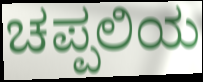
ಚಪ್ಪಲಿಯ